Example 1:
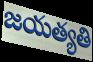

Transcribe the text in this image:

జయత్యతి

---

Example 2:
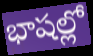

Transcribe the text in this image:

భాషల్లో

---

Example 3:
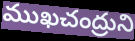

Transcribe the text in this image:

ముఖచంద్రుని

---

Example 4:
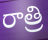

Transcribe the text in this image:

రాత్రి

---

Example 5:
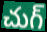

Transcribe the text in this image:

చుగ్